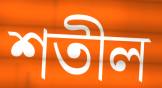
শতীল